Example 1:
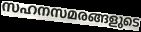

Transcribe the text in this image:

സഹനസമരങ്ങളുടെ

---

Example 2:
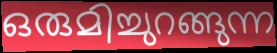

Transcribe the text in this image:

ഒരുമിച്ചുറങ്ങുന്ന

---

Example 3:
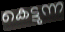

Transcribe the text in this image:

കെട്ടുന്ന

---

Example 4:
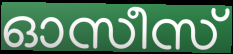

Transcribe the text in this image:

ഓസീസ്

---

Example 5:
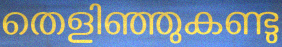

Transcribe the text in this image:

തെളിഞ്ഞുകണ്ടു